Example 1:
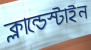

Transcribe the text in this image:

ক্লান্ডেস্টাইন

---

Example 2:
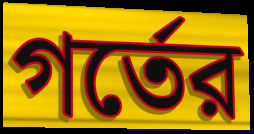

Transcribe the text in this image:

গর্তের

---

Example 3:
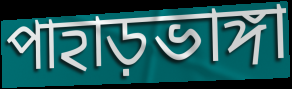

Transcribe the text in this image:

পাহাড়ভাঙ্গা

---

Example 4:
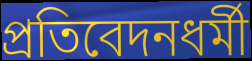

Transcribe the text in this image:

প্রতিবেদনধর্মী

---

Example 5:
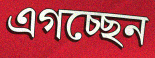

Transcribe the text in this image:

এগচ্ছেন